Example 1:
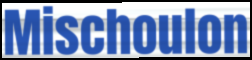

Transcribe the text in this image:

Mischoulon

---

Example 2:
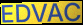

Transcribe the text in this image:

EDVAC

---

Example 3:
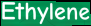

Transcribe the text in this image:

Ethylene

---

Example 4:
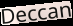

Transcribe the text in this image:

Deccan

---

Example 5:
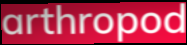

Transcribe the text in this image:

arthropod